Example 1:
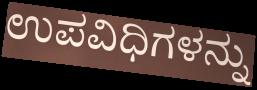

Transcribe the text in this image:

ಉಪವಿಧಿಗಳನ್ನು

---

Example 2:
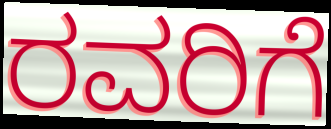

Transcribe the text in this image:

ರವರಿಗೆ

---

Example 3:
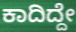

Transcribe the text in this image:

ಕಾದಿದ್ದೇ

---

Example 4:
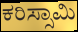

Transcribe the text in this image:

ಕರಿಸ್ಸಾಮಿ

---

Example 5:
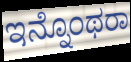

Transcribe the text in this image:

ಇನ್ನೊಂಥರಾ